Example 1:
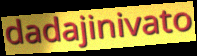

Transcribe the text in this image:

dadajinivato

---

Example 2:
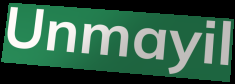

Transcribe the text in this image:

Unmayil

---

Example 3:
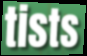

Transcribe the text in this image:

tists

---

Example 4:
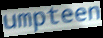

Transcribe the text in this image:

umpteen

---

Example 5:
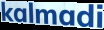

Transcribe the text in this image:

kalmadi